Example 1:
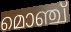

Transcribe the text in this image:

മൊഞ്ച്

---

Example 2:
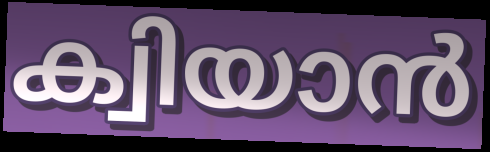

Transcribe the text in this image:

ക്വിയാൻ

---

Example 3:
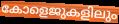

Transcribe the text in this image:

കോളെജുകളിലും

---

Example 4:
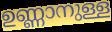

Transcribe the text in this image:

ഉണ്ണാനുള്ള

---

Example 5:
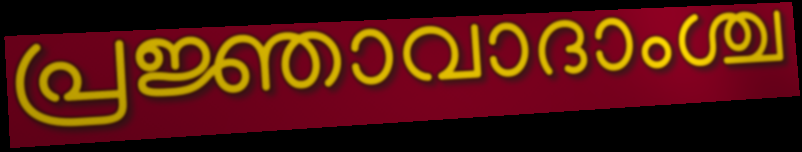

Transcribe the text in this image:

പ്രജ്ഞാവാദാംശ്ച